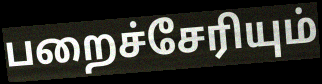
பறைச்சேரியும்